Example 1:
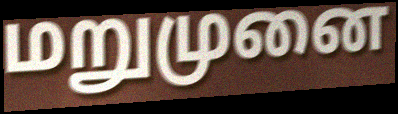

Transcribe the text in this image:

மறுமுனை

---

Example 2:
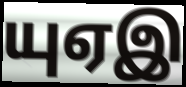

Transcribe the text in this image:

யுஏஇ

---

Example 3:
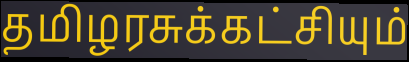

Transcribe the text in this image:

தமிழரசுக்கட்சியும்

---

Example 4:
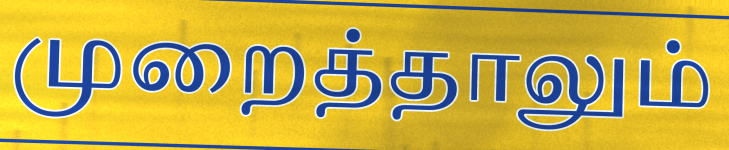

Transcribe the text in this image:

முறைத்தாலும்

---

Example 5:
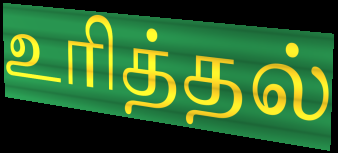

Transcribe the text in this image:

உரித்தல்